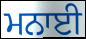
ਮਨਾਈ